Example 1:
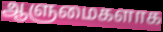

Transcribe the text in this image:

ஆளுமைகளாக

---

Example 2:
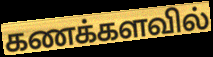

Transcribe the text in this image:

கணக்களவில்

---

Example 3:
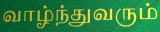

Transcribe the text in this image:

வாழ்ந்துவரும்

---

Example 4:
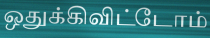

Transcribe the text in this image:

ஒதுக்கிவிட்டோம்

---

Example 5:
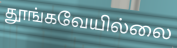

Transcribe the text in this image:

தூங்கவேயில்லை